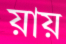
য়ায়